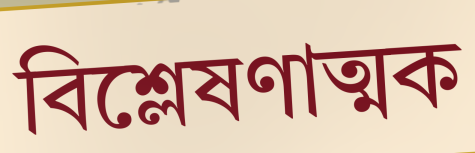
বিশ্লেষণাত্মক